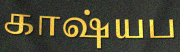
காஷ்யப